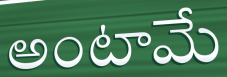
అంటామే